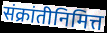
संक्रांतीनिमित्त